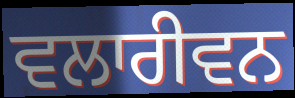
ਵਲਾਰੀਵਨ